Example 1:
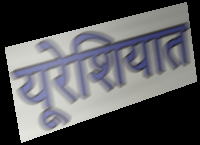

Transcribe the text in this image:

यूरेशियात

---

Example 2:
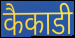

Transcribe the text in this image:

कैकाडी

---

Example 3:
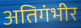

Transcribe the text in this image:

अतिगंभीर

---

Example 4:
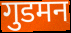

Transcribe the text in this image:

गुडमन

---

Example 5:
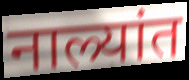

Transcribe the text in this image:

नाल्यांत